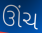
ઊંચ